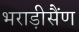
भराड़ीसैंण